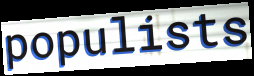
populists